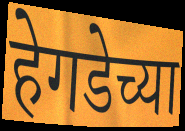
हेगडेच्या